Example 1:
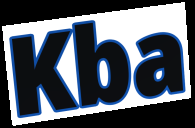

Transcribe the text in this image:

Kba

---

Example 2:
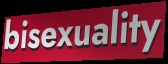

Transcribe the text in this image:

bisexuality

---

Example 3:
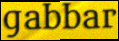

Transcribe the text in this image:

gabbar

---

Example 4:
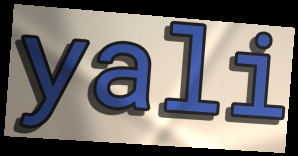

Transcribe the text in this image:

yali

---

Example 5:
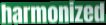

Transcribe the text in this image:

harmonized